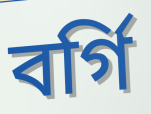
বর্গি